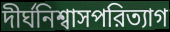
দীর্ঘনিশ্বাসপরিত্যাগ